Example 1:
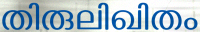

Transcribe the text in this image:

തിരുലിഖിതം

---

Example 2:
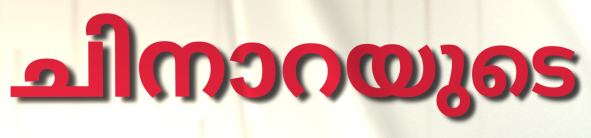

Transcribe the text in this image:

ചിനാറയുടെ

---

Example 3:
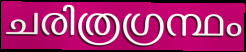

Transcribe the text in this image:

ചരിത്രഗ്രന്ഥം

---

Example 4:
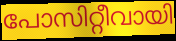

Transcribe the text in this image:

പോസിറ്റീവായി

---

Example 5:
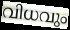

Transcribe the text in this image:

വിധവും